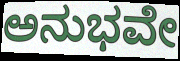
ಅನುಭವೇ